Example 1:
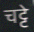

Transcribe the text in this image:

चट्टे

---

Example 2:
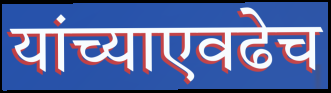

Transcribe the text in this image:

यांच्याएवढेच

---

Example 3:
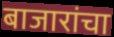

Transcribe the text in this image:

बाजारांचा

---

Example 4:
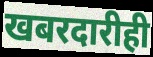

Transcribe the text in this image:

खबरदारीही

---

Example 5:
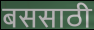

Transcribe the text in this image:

बससाठी